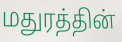
மதுரத்தின்